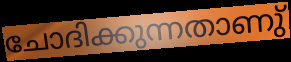
ചോദിക്കുന്നതാണു്